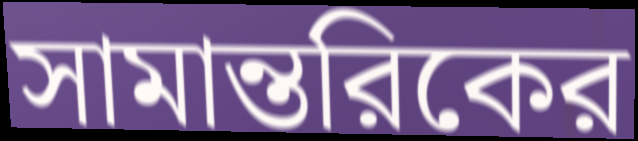
সামান্তরিকের